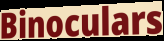
Binoculars